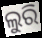
ଲୁରି